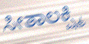
ಸೀತಾಲಕ್ಷ್ಮಿ